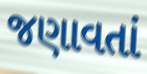
જણાવતાં